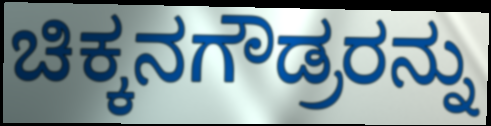
ಚಿಕ್ಕನಗೌಡ್ರರನ್ನು